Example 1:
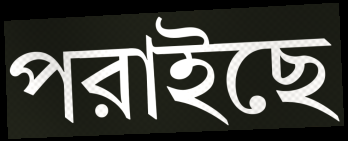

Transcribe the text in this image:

পরাইছে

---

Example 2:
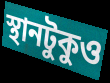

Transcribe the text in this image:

স্থানটুকুও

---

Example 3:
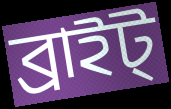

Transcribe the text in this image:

ব্রাইট্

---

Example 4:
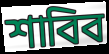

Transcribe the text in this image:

শাবিব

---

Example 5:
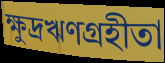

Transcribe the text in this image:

ক্ষুদ্রঋণগ্রহীতা